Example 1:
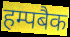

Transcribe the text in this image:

हम्पबैक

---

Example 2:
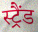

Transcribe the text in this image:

स्ट्रैंड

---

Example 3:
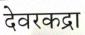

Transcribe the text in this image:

देवरकद्रा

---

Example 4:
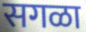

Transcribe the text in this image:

सगळा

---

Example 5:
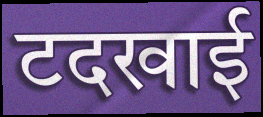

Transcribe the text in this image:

टदखाई